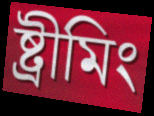
ষ্ট্ৰীমিং